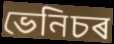
ভেনিচৰ